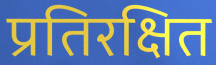
प्रतिरक्षित